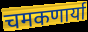
चमकणार्या